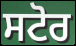
ਸਟੋਰ